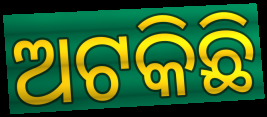
ଅଟକିଛି